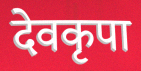
देवकृपा